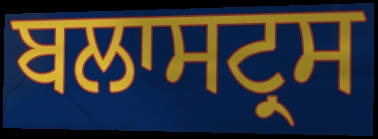
ਬਲਾਸਟ੍ਰਸ